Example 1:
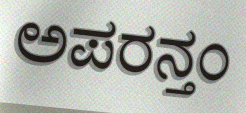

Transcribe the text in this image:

ಅಪರನ್ತಂ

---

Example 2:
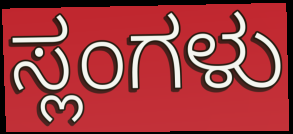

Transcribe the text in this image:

ಸ್ಲಂಗಳು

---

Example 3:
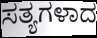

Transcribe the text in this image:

ಸತ್ಯಗಳಾದ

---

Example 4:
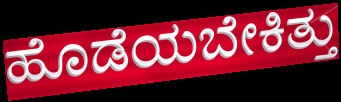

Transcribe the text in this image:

ಹೊಡೆಯಬೇಕಿತ್ತು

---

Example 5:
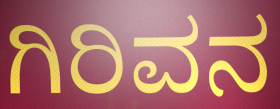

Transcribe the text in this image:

ಗಿರಿವನ